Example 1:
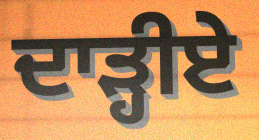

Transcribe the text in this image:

ਦਾੜ੍ਹੀਏ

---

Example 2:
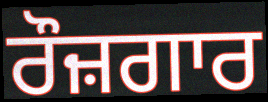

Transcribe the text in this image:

ਰੌਜ਼ਗਾਰ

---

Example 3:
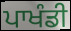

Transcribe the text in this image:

ਪਾਖੰਡੀ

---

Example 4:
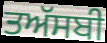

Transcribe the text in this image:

ਤਅੱਸਬੀ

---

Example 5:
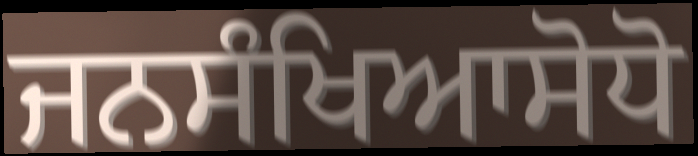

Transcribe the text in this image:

ਜਨਸੰਖਿਆਸੋਧੋ